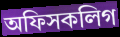
অফিসকলিগ